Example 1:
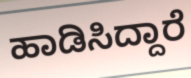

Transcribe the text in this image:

ಹಾಡಿಸಿದ್ದಾರೆ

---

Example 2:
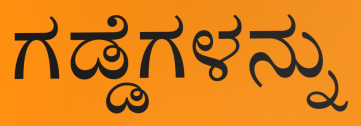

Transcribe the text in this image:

ಗಡ್ಡೆಗಳನ್ನು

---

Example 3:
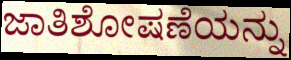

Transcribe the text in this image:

ಜಾತಿಶೋಷಣೆಯನ್ನು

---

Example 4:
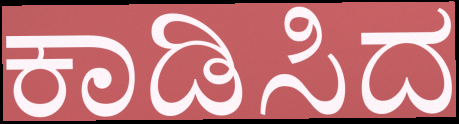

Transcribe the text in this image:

ಕಾಡಿಸಿದ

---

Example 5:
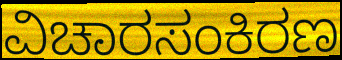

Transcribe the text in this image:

ವಿಚಾರಸಂಕಿರಣ